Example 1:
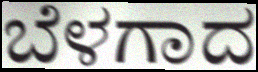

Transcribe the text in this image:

ಬೆಳಗಾದ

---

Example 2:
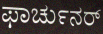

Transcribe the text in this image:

ಫಾರ್ಚುನರ್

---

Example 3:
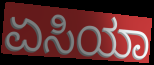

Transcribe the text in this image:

ಏಸಿಯಾ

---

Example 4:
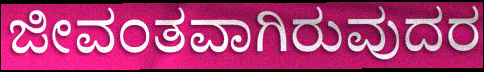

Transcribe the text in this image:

ಜೀವಂತವಾಗಿರುವುದರ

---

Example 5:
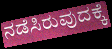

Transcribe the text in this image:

ನಡೆಸಿರುವುದಕ್ಕೆ